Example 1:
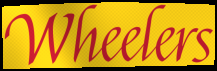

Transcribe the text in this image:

Wheelers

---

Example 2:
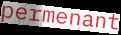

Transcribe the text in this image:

permenant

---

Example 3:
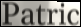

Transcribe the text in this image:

Patric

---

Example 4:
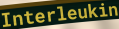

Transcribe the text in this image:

Interleukin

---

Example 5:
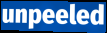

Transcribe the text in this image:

unpeeled